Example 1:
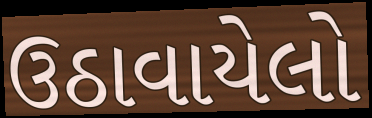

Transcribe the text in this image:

ઉઠાવાયેલો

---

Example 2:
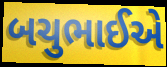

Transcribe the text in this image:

બચુભાઈએ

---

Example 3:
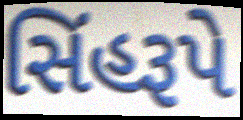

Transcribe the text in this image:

સિંહરૂપે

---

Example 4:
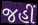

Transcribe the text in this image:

જહીં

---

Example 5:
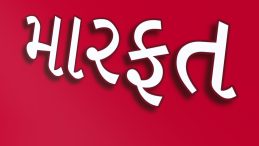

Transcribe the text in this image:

મારફત